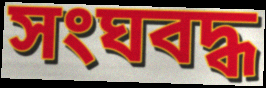
সংঘবদ্ধ